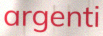
argenti